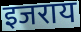
इजराय